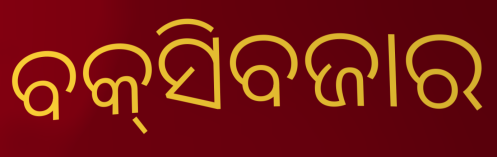
ବକ୍‌ସିବଜାର